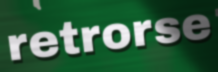
retrorse